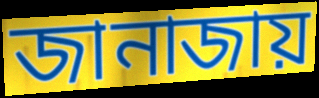
জানাজায়